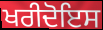
ਖਰੀਦੋਇਸ